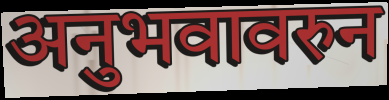
अनुभवावरुन